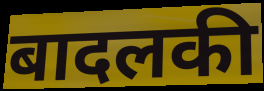
बादलकी